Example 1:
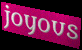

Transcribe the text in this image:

joyous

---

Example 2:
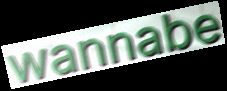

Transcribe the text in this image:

wannabe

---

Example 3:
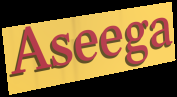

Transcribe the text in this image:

Aseega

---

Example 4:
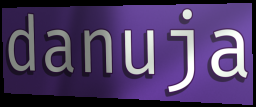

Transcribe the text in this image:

danuja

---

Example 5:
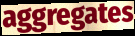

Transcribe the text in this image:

aggregates